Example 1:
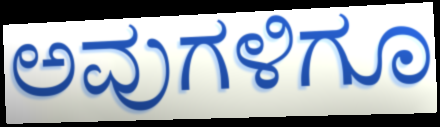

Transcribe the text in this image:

ಅವುಗಳಿಗೂ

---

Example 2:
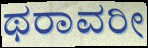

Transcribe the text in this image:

ಥರಾವರೀ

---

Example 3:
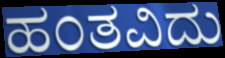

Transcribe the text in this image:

ಹಂತವಿದು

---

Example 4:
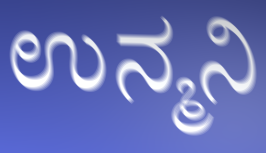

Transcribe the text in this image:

ಉನ್ಮನಿ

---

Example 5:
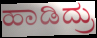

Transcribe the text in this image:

ಹಾಡಿದ್ರು